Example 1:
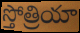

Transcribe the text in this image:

స్తోత్రియా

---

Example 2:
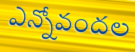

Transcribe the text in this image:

ఎన్నోవందల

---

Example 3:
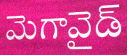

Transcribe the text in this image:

మెగావైడ్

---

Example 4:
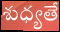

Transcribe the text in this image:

శుధ్యతే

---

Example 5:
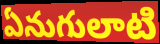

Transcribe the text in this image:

ఏనుగులాటి